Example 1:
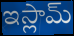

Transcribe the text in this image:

ఇస్లామ్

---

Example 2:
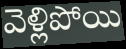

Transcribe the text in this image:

వెళ్లిపోయి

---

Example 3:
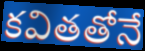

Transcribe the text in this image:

కవితతోనే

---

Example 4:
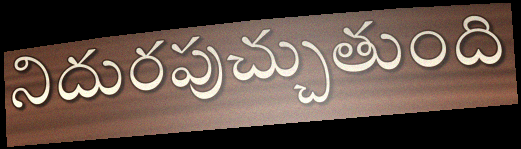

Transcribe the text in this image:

నిదురపుచ్చుతుంది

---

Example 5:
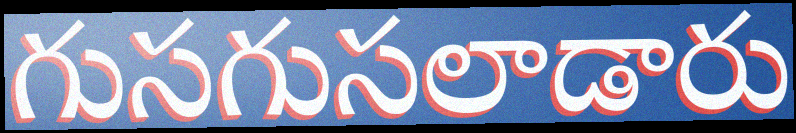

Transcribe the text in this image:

గుసగుసలాడారు